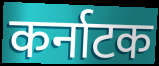
कर्नाटक